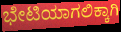
ಭೇಟಿಯಾಗಲಿಕ್ಕಾಗಿ